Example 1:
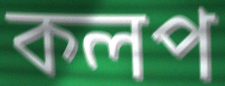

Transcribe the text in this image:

কলপ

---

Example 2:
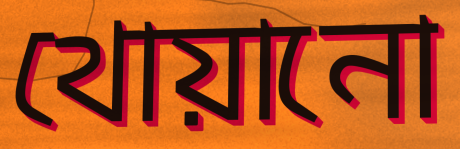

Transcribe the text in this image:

থোয়ানো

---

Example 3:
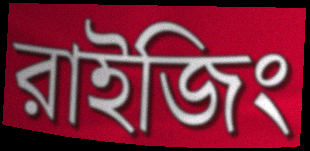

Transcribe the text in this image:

রাইজিং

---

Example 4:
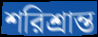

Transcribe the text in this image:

শরিশ্রান্ত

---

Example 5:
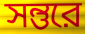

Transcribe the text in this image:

সন্তুরে